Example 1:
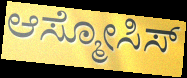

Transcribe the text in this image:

ಆಸ್ಮೋಸಿಸ್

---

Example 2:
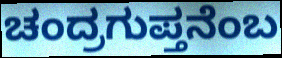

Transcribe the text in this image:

ಚಂದ್ರಗುಪ್ತನೆಂಬ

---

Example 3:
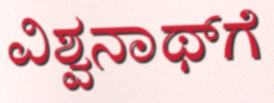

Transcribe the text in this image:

ವಿಶ್ವನಾಥ್‌ಗೆ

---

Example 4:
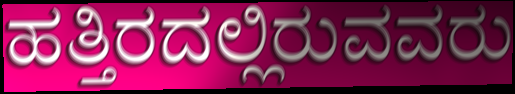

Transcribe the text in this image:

ಹತ್ತಿರದಲ್ಲಿರುವವರು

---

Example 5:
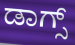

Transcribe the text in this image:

ಡಾಗ್ಸ್